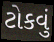
ટોકવું